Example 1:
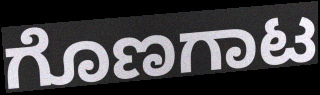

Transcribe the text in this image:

ಗೊಣಗಾಟ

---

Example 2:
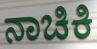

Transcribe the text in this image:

ನಾಚಿಕಿ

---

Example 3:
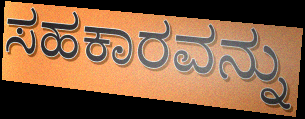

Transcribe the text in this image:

ಸಹಕಾರವನ್ನು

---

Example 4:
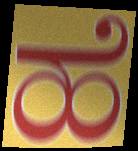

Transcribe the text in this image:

ಹೆ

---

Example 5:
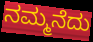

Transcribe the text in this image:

ನಮ್ಮನೆದು